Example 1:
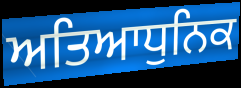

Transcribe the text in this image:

ਅਤਿਆਧੁਨਿਕ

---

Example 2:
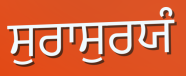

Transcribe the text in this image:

ਸੁਰਾਸੁਰਯੰ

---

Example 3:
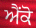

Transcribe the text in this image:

ਐਂਕੋ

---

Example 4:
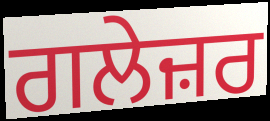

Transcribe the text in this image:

ਗਲੇਜ਼ਰ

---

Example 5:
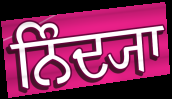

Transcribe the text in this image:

ਨਿੰਦ੍ਯਾ